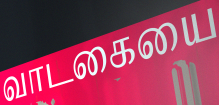
வாடகையை